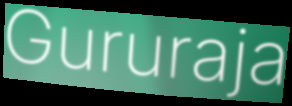
Gururaja